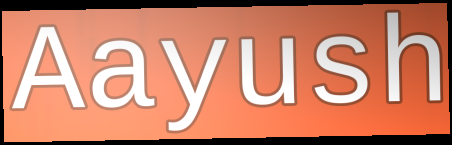
Aayush